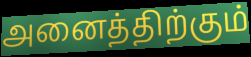
அனைத்திற்கும்